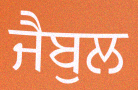
ਜੈਬੁਲ